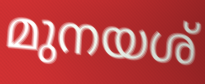
മുനയശ്